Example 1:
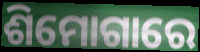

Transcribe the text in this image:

ଶିମୋଗାରେ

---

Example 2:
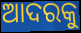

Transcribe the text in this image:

ଆଦରକୁ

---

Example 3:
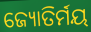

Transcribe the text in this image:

ଜ୍ୟୋତିର୍ମୟ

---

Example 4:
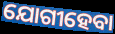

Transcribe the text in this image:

ଯୋଗୀହେବା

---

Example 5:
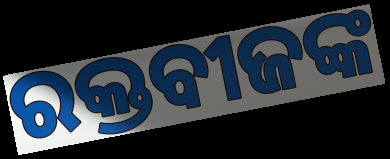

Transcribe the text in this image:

ରକ୍ତବୀଜଙ୍କ